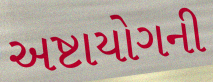
અષ્ટાયોગની